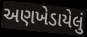
અણખેડાયેલું